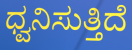
ಧ್ವನಿಸುತ್ತಿದೆ